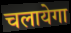
चलायेगा